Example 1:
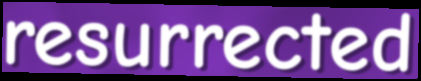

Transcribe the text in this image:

resurrected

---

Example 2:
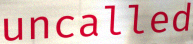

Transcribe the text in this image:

uncalled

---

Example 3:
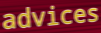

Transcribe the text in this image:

advices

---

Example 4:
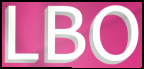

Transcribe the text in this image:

LBO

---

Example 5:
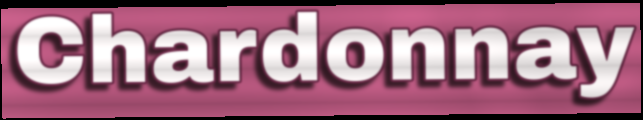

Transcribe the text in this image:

Chardonnay